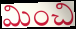
మించి